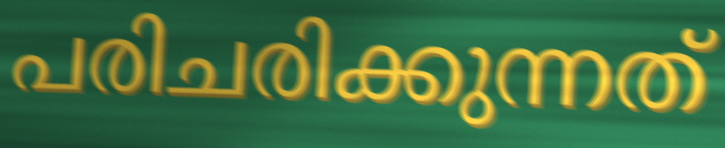
പരിചരിക്കുന്നത്